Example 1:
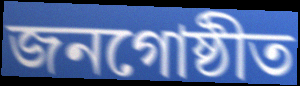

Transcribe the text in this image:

জনগোষ্ঠীত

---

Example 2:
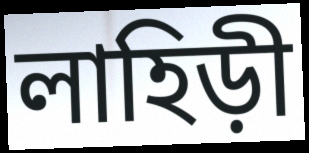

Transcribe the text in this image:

লাহিড়ী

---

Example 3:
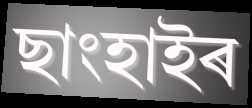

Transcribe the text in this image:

ছাংহাইৰ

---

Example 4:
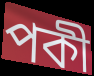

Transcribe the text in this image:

পকী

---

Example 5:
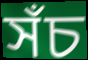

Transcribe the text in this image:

সঁচ